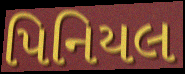
પિનિયલ